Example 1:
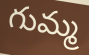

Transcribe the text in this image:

గుమ్మ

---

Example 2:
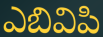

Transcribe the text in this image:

ఎబివిపి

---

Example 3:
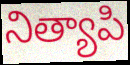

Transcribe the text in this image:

నిత్యాపి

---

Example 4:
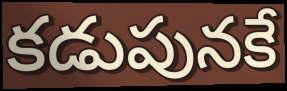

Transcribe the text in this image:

కడుపునకే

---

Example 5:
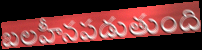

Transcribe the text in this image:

బలహీనపడుతుంది